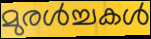
മുരൾച്ചകൾ